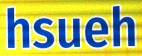
hsueh